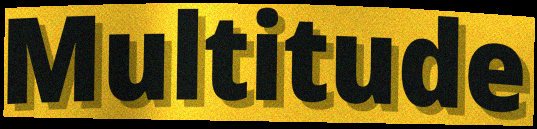
Multitude